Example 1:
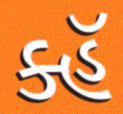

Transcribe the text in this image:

ક્હૅ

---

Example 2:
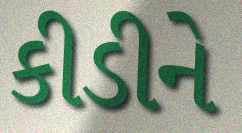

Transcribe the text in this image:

કીડીને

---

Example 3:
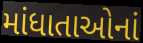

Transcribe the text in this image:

માંધાતાઓનાં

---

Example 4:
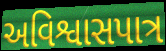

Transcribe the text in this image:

અવિશ્વાસપાત્ર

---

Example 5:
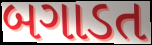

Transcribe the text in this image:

બગાડત